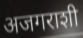
अजगराशी